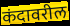
कंदावरील